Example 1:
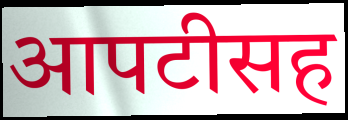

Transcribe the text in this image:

आपटीसह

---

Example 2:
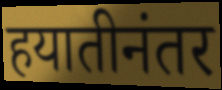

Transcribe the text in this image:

हयातीनंतर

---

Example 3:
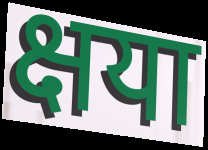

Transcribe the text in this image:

क्षया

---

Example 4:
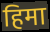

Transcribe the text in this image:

हिमा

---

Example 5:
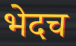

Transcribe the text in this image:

भेदच